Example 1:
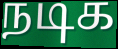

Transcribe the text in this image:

நடிக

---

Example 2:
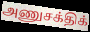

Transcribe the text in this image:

அணுசக்திக்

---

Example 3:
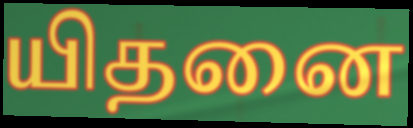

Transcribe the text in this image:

யிதனை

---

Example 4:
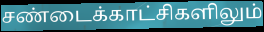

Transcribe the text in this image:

சண்டைக்காட்சிகளிலும்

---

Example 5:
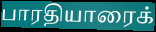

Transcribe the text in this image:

பாரதியாரைக்